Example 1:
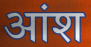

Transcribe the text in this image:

आंश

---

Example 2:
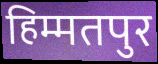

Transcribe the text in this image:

हिम्मतपुर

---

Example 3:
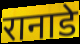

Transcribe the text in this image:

रानाडे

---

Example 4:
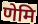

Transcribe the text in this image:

णेमि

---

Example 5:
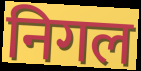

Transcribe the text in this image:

निगल